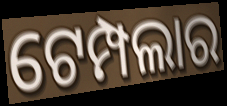
ଟେମ୍ପଲାର